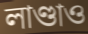
লাণ্ডাও